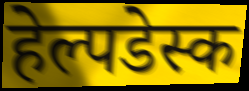
हेल्पडेस्क